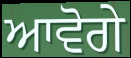
ਆਵੋਗੇ